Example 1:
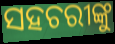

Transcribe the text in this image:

ସହଚରୀଙ୍କୁ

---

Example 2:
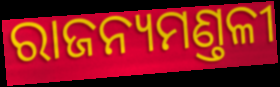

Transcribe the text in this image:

ରାଜନ୍ୟମଣ୍ତଳୀ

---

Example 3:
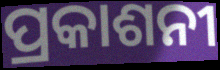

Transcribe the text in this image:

ପ୍ରକାଶନୀ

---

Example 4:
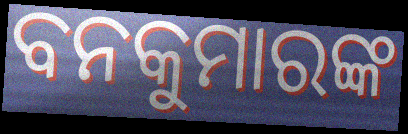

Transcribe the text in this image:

ବନକୁମାରଙ୍କ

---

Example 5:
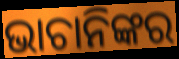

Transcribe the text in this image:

ଭାଚାନିଙ୍କର